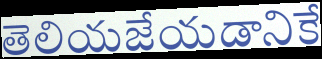
తెలియజేయడానికే